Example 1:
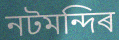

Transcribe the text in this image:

নটমন্দিৰ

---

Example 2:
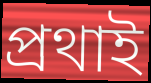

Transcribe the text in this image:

প্ৰথাই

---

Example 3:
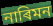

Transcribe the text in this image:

নাৰিমন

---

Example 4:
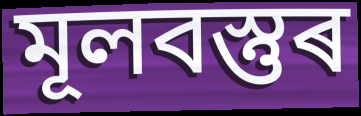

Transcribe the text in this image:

মূলবস্তুৰ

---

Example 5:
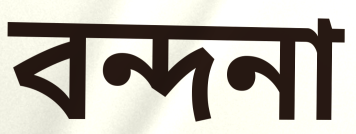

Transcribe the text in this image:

বন্দনা